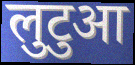
लुटुआ